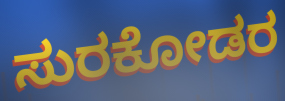
ಸುರಕೋಡರ